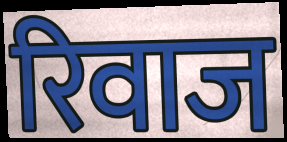
रिवाज